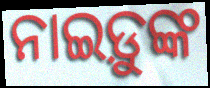
ନାଇଡ଼ୁଙ୍କ